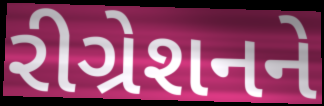
રીગ્રેશનને